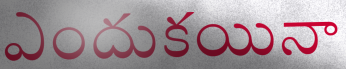
ఎందుకయినా